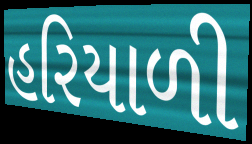
હરિયાળી